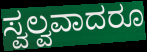
ಸ್ವಲ್ವವಾದರೂ